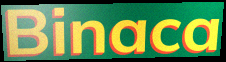
Binaca